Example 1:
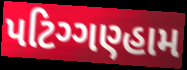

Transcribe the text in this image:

પટિગ્ગણ્હામ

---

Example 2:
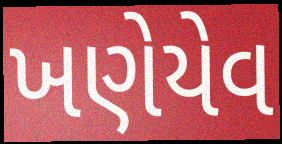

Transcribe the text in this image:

ખણેયેવ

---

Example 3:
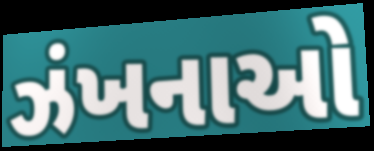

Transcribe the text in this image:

ઝંખનાઓ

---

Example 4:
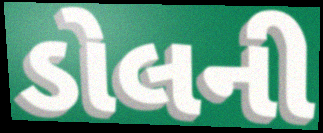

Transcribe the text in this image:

ડોલની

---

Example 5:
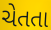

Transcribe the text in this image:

ચેતતા